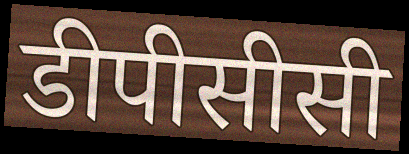
डीपीसीसी